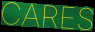
CARES